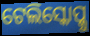
ଟେଲିସ୍କୋପ୍କୁ